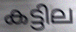
കട്ടില